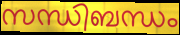
സന്ധിബന്ധം